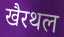
खैरथल